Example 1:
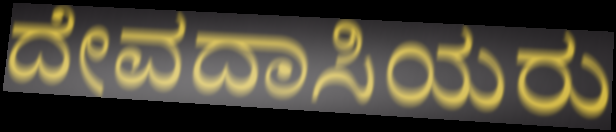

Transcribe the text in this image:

ದೇವದಾಸಿಯರು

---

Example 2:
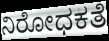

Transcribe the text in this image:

ನಿರೋಧಕತೆ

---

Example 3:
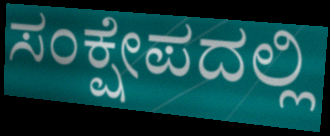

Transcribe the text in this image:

ಸಂಕ್ಷೇಪದಲ್ಲಿ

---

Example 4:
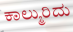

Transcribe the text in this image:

ಕಾಲ್ಮುರಿದು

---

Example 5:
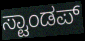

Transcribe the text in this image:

ಸ್ಟಾಂಡಪ್